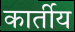
कार्तीय